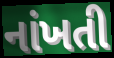
નાંખતી